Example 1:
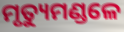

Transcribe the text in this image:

ମୃତ୍ୟୁମଣ୍ଡଳେ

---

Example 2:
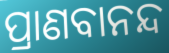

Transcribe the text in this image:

ପ୍ରାଣବାନନ୍ଦ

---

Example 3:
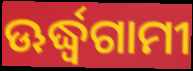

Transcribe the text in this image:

ଊର୍ଦ୍ଧ୍ଵଗାମୀ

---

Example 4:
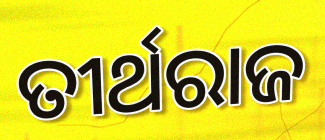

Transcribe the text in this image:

ତୀର୍ଥରାଜ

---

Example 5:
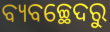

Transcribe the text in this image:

ବ୍ୟବଚ୍ଛେଦରୁ